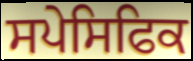
ਸਪੇਸਿਫਿਕ